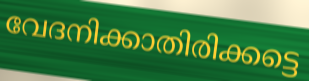
വേദനിക്കാതിരിക്കട്ടെ